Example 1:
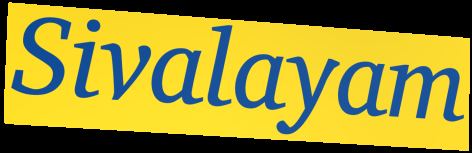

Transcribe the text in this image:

Sivalayam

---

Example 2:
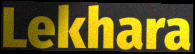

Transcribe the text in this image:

Lekhara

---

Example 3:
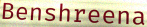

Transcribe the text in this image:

Benshreena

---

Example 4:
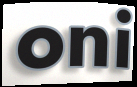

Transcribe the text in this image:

oni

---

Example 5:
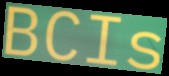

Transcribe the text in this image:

BCIs